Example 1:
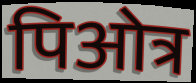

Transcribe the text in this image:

पिओत्र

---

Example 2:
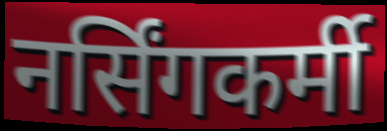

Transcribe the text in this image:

नर्सिंगकर्मी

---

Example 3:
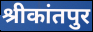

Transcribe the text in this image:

श्रीकांतपुर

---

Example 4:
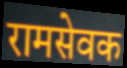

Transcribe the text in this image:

रामसेवक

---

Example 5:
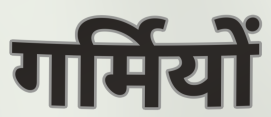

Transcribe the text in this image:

गर्मियों